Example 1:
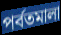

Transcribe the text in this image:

পর্বতমালা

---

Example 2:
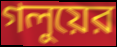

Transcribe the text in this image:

গলুয়ের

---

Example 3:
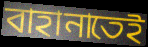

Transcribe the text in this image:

বাহানাতেই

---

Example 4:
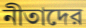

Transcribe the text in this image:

নীতাদের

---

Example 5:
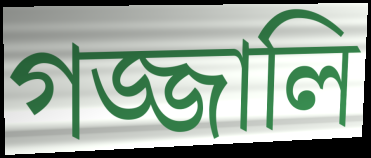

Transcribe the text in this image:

গজ্জালি